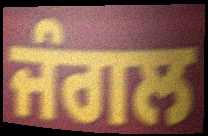
ਜੰਗਲ